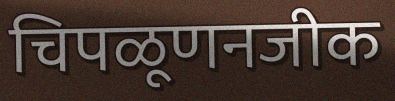
चिपळूणनजीक